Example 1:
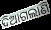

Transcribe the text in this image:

ଦିଆଗଲାଣି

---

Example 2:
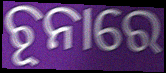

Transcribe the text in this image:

ଚୂନାରେ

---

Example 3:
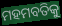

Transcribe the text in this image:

ମହମବତିକୁ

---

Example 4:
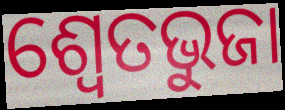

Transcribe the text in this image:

ଶ୍ଵେତଭୁଜା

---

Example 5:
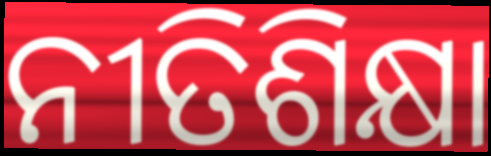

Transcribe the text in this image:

ନୀତିଶିକ୍ଷା